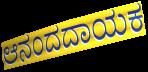
ಆನಂದದಾಯಕ